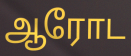
ஆரோட